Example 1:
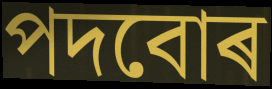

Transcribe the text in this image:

পদবোৰ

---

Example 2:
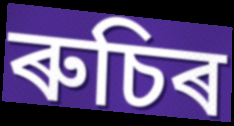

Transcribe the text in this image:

ৰুচিৰ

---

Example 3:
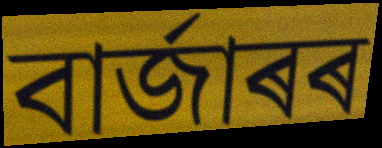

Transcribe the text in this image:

বাৰ্জাৰৰ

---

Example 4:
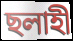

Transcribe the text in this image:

ছলাহী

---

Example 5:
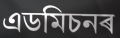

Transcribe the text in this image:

এডমিচনৰ